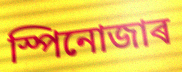
স্পিনোজাৰ